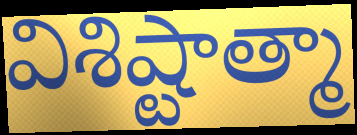
విశిష్టాత్మా